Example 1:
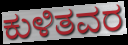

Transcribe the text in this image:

ಕುಳಿತವರ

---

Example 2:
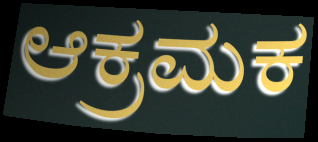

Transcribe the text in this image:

ಆಕ್ರಮಕ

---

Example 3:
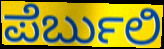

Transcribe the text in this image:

ಪೆರ್ಬುಲಿ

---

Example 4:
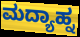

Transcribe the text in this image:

ಮದ್ಯಾಹ್ನ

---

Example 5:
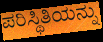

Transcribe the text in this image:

ಪರಿಸ್ಥಿತಿಯನ್ನು